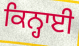
ਕਿਨ੍ਹਾਈ